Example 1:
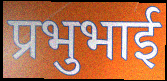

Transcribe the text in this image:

प्रभुभाई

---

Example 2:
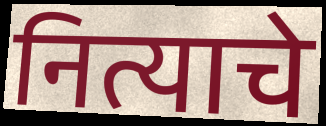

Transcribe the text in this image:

नित्याचे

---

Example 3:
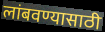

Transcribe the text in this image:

लांबवण्यासाठी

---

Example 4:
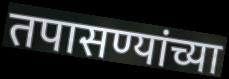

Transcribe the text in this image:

तपासण्यांच्या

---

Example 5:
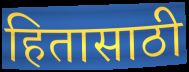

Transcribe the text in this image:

हितासाठी